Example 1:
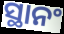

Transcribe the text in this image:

ସ୍ଥାନଂ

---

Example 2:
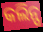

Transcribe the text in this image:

କଲିନ୍ସ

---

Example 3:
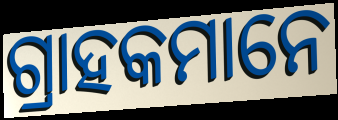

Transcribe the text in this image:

ଗ୍ରାହକମାନେ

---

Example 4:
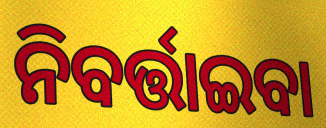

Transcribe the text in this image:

ନିବର୍ତ୍ତାଇବା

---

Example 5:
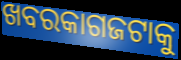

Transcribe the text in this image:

ଖବରକାଗଜଟାକୁ